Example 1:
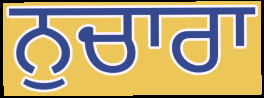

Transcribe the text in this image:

ਨੁਚਾਰਾ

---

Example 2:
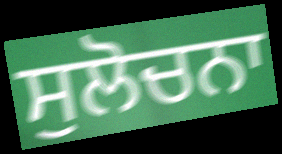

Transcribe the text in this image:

ਸੁਲੋਚਨਾ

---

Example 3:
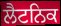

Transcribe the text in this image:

ਲੈਟਨਿਕ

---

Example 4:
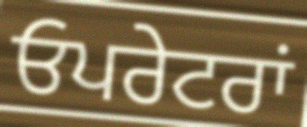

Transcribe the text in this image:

ਓਪਰੇਟਰਾਂ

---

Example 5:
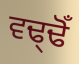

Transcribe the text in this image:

ਵਢ੍ਢੋਁ